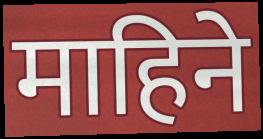
माहिने